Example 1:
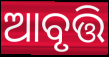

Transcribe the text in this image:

ଆବୃତ୍ତି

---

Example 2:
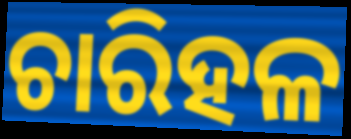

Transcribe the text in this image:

ଚାରିହଳ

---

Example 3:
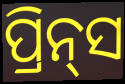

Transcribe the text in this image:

ପ୍ରିନ୍‍ସ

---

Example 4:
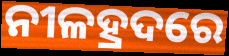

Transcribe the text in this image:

ନୀଳହ୍ରଦରେ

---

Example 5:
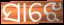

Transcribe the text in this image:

ସାଝେ